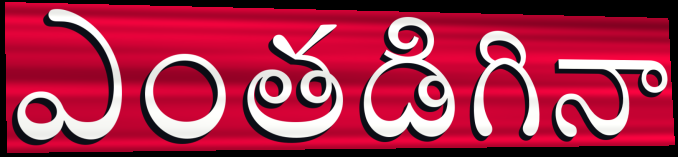
ఎంతడిగినా